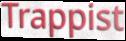
Trappist